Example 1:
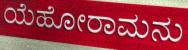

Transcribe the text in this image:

ಯೆಹೋರಾಮನು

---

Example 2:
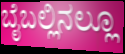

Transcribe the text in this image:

ಬೈಬಲ್ಲಿನಲ್ಲೂ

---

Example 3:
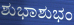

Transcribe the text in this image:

ಶುಭಾಶುಭಂ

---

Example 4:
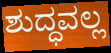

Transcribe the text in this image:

ಶುದ್ಧವಲ್ಲ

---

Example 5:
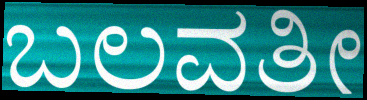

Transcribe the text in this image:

ಬಲವತೀ